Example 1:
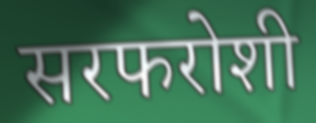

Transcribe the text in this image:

सरफरोशी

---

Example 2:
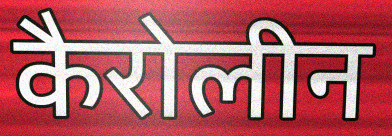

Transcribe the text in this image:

कैरोलीन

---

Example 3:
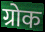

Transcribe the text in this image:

ग्रोक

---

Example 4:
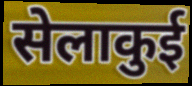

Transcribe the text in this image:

सेलाकुई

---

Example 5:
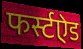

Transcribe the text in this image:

फर्स्टऐड